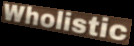
Wholistic